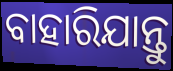
ବାହାରିଯାନ୍ତୁ